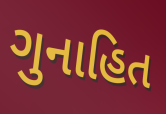
ગુનાહિત